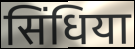
सिंधिया